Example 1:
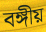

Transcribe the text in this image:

বঙ্গীয়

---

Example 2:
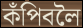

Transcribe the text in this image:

কঁপিবলৈ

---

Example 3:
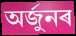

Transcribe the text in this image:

অৰ্জুনৰ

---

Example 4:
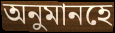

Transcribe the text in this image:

অনুমানহে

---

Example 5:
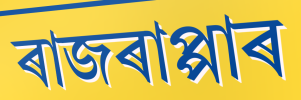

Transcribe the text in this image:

ৰাজৰাপ্পাৰ